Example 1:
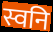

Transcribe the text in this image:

स्वनि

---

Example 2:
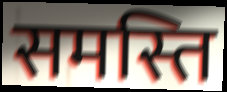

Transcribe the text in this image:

समस्ति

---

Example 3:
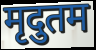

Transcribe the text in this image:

मृदुतम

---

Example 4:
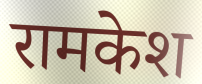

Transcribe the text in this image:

रामकेश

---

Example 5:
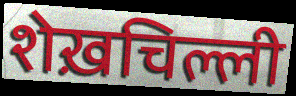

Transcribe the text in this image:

शेख़चिल्ली